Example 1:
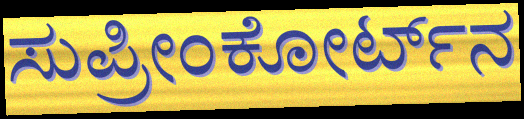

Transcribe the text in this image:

ಸುಪ್ರೀಂಕೋರ್ಟ್‌ನ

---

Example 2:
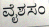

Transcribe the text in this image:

ವೈಶಸಂ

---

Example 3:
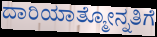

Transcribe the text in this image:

ದಾರಿಯಾತ್ಮೋನ್ನತಿಗೆ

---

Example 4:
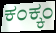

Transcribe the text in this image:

ಕಂಕ್ಕಂ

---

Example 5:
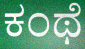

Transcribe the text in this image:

ಕಂಥೆ